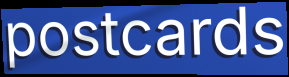
postcards